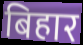
बिहार